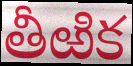
తీఱిక